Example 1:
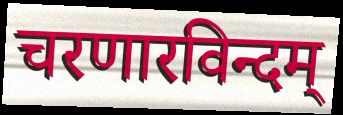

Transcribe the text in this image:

चरणारविन्दम्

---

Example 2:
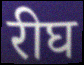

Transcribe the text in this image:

रीघ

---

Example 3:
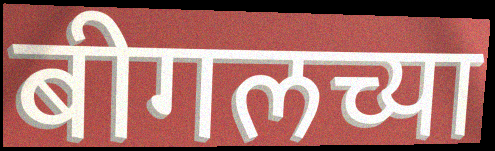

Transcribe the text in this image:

बीगलच्या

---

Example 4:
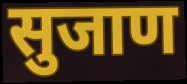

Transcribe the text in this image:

सुजाण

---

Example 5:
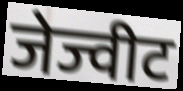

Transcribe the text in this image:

जेज्वीट